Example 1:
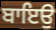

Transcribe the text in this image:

ਬਾਇਉ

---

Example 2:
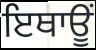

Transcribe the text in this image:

ਇਥਾਊਂ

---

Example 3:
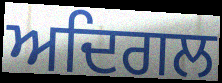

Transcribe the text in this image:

ਅਦਿਗਲ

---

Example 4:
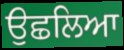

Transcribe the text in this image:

ਉਛਲਿਆ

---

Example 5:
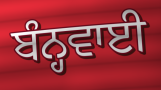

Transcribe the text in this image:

ਬੰਨ੍ਹਵਾਈ